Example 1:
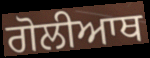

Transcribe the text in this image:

ਗੋਲੀਆਥ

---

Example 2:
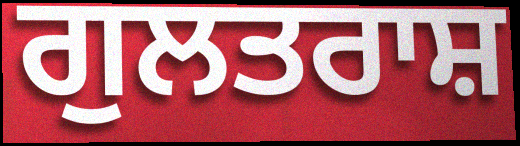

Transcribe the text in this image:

ਗੁਲਤਰਾਸ਼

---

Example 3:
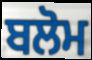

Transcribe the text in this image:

ਬਲੋਮ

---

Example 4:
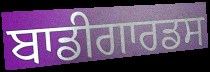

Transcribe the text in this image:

ਬਾਡੀਗਾਰਡਸ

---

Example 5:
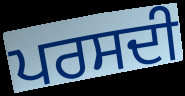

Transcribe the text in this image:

ਪਰਸਦੀ